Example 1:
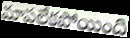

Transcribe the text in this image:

మాపలేకపోయింది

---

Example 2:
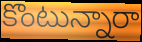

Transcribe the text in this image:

కొంటున్నారా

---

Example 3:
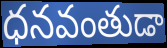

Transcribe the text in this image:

ధనవంతుడా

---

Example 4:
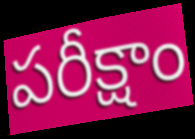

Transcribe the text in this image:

పరీక్షాం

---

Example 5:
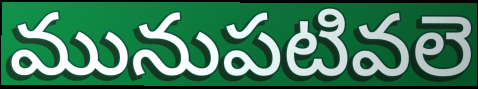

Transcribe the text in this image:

మునుపటివలె